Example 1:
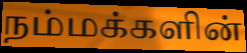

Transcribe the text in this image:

நம்மக்களின்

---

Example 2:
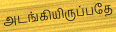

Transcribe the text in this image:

அடங்கியிருப்பதே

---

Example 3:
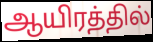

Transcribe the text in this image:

ஆயிரத்தில்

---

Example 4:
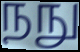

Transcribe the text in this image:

நநு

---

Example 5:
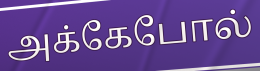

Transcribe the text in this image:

அக்கேபோல்